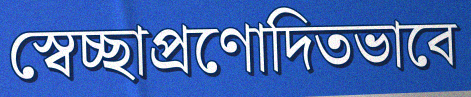
স্বেচ্ছাপ্রণোদিতভাবে